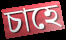
চাহে